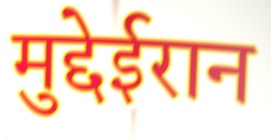
मुद्देईरान